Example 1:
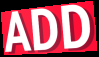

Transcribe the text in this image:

ADD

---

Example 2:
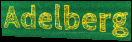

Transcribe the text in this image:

Adelberg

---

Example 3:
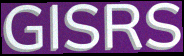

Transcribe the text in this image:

GISRS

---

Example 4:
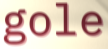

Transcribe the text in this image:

gole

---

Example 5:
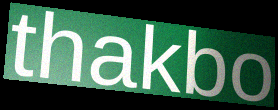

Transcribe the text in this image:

thakbo